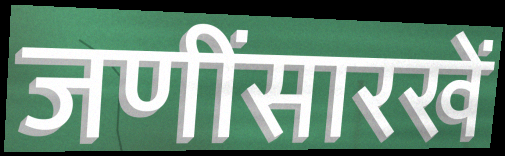
जणींसारखें